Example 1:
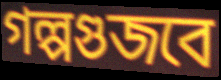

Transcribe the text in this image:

গল্পগুজবে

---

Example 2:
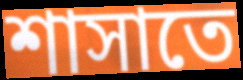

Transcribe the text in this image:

শাসাতে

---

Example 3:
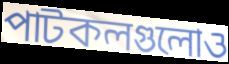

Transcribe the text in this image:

পাটকলগুলোও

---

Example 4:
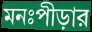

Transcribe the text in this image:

মনঃপীড়ার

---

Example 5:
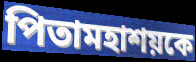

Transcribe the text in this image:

পিতামহাশয়কে